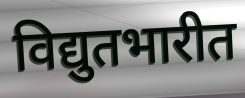
विद्युतभारीत